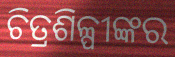
ଚିତ୍ରଶିଳ୍ପୀଙ୍କର